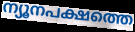
ന്യൂനപക്ഷത്തെ